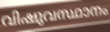
വിഷുവസ്ഥാനം